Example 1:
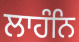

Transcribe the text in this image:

ਲਾਹੰਨਿ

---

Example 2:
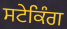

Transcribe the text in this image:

ਸਟੇਕਿੰਗ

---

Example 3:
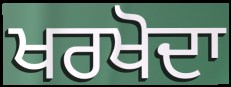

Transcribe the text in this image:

ਖਰਖੋਦਾ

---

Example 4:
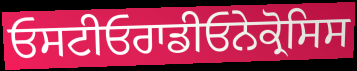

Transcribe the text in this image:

ਓਸਟੀਓਰਾਡੀਓਨੇਕ੍ਰੋਸਿਸ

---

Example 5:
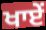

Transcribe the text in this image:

ਖਾਏਂ